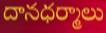
దానధర్మాలు